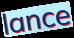
lance